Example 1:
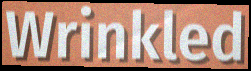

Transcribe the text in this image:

Wrinkled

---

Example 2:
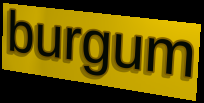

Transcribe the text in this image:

burgum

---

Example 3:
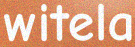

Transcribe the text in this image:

witela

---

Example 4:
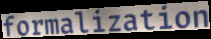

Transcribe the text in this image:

formalization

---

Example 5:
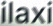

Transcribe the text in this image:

ilaxi